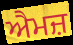
ਐਮਜ਼